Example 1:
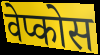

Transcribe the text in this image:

वेप्कोस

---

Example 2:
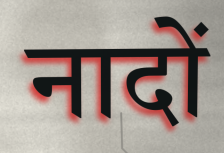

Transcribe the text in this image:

नादों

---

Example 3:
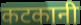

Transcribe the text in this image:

कटकानी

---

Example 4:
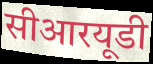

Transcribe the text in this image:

सीआरयूडी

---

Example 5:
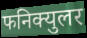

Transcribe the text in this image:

फनिक्युलर